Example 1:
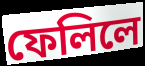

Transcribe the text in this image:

ফেলিলে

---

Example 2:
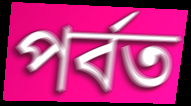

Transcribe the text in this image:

পর্বত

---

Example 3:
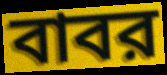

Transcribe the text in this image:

বাবর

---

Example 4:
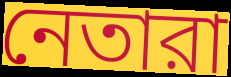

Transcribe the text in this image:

নেতারা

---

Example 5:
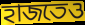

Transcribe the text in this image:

হাজতেও